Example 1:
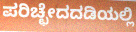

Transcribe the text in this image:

ಪರಿಚ್ಛೇದದಡಿಯಲ್ಲಿ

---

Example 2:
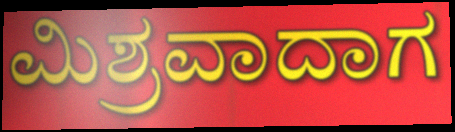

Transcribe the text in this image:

ಮಿಶ್ರವಾದಾಗ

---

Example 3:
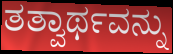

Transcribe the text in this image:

ತತ್ವಾರ್ಥವನ್ನು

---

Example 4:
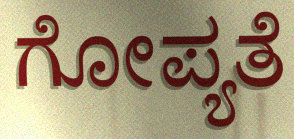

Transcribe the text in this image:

ಗೋಪ್ಯತೆ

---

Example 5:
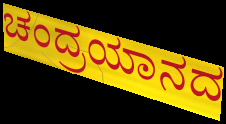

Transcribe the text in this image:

ಚಂದ್ರಯಾನದ